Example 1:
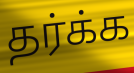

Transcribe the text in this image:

தர்க்க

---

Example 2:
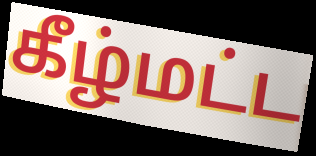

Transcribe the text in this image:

கீழ்மட்ட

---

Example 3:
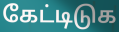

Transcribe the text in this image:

கேட்டிடுக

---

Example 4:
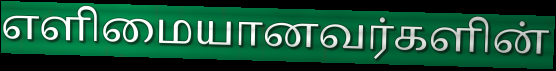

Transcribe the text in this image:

எளிமையானவர்களின்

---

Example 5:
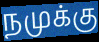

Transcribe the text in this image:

நமுக்கு